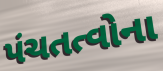
પંચતત્વોના